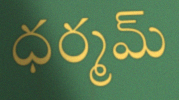
ధర్మమ్